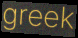
greek